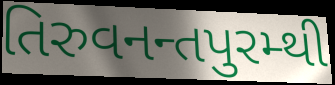
તિરુવનન્તપુરમ્થી